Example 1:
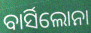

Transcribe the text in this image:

ବାର୍ସିଲୋନା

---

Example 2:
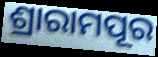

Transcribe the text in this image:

ଶ୍ରାରାମପୂର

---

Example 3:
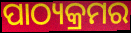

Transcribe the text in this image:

ପାଠ୍ୟକ୍ରମର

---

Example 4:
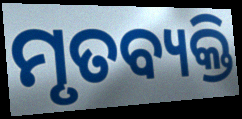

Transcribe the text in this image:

ମୃତବ୍ୟକ୍ତି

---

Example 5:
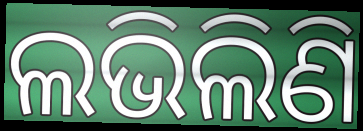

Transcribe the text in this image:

ଲଭିଲିଣି